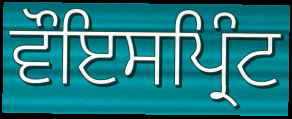
ਵੌਇਸਪ੍ਰਿੰਟ